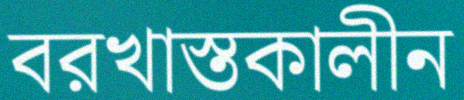
বরখাস্তকালীন